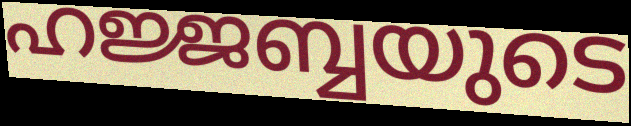
ഹജ്ജബ്ബയുടെ